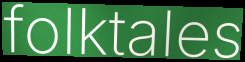
folktales